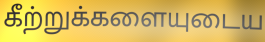
கீற்றுக்களையுடைய